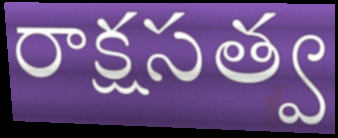
రాక్షసత్వ